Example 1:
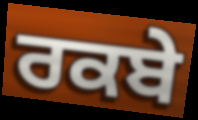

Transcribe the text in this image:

ਰਕਬੇ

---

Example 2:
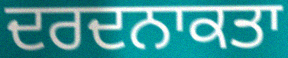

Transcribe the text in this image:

ਦਰਦਨਾਕਤਾ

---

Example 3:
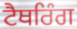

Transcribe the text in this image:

ਟੈਥਰਿੰਗ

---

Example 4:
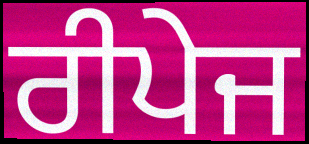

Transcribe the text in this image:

ਰੀਪੇਜ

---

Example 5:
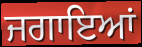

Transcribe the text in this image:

ਜਗਾਇਆਂ